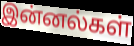
இன்னல்கள்